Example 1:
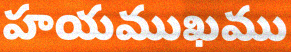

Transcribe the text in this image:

హయముఖము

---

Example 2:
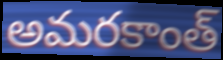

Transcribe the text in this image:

అమరకాంత్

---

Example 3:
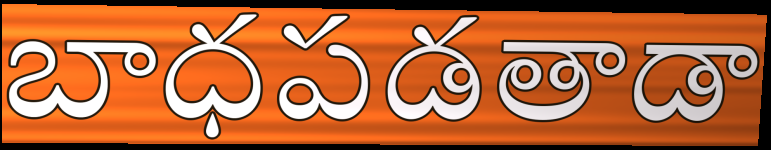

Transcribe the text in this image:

బాధపడతాడా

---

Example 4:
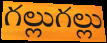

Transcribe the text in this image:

గల్లుగల్లు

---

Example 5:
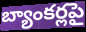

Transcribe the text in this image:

బ్యాంకర్లపై